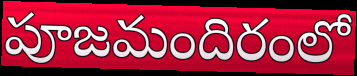
పూజమందిరంలో